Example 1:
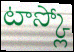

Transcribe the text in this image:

టాస్క్లో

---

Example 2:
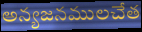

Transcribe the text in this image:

అన్యజనములచేత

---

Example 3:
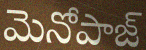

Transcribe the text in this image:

మెనోపాజ్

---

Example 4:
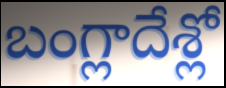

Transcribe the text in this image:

బంగ్లాదేశ్లో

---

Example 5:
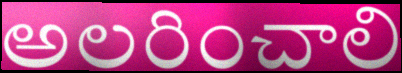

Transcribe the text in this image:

అలరించాలి